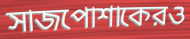
সাজপোশাকেরও